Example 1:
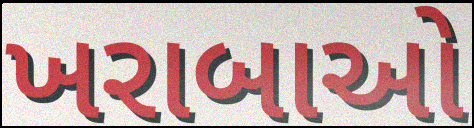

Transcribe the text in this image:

ખરાબાઓ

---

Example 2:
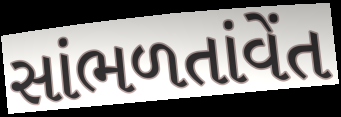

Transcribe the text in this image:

સાંભળતાંવેંત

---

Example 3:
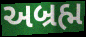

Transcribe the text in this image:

અબ્રહ્મ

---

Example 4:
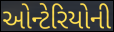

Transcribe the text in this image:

ઓન્ટેરિયોની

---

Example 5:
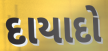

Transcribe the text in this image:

દાયાદો